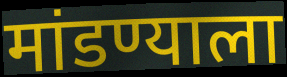
मांडण्याला